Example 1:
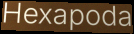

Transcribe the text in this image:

Hexapoda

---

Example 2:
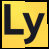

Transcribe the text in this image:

Ly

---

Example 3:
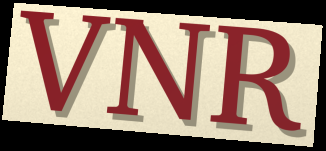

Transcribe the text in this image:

VNR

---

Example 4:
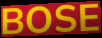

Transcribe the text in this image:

BOSE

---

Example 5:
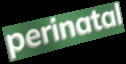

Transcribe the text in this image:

perinatal